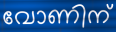
വോണിന്